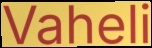
Vaheli